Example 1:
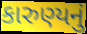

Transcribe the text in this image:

કારુણ્યનું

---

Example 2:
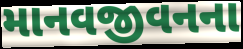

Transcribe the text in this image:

માનવજીવનના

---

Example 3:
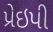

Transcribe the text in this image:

પ્રેઇપી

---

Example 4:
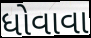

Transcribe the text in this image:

ધોવાવા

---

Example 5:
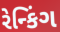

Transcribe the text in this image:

રેન્કિંગ